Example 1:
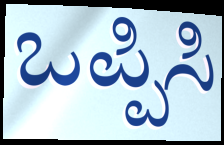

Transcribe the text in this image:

ಒಪ್ಪಿಸಿ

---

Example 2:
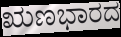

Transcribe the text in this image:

ಋಣಭಾರದ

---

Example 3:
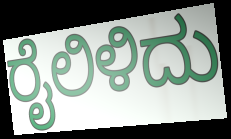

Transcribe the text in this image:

ರೈಲಿಳಿದು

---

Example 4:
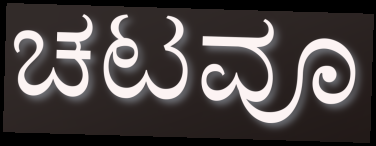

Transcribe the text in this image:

ಚಟವೂ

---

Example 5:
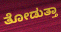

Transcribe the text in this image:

ತೋಡುತ್ತಾ